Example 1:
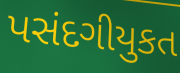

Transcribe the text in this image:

પસંદગીયુકત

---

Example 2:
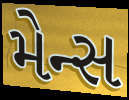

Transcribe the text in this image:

મેન્સ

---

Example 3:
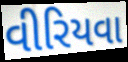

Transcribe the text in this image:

વીરિયવા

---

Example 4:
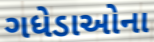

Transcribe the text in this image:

ગધેડાઓના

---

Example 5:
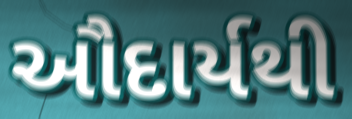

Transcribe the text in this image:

ઔદાર્યથી